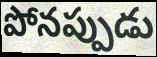
పోనప్పుడు